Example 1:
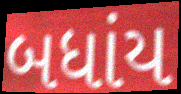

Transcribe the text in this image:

બધાંય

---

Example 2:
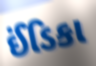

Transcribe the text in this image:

ઈંડિકા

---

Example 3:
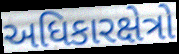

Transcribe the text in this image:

અધિકારક્ષેત્રો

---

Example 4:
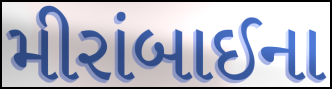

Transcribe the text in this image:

મીરાંબાઈના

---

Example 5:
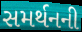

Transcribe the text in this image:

સમર્થનની